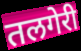
तलगेरी